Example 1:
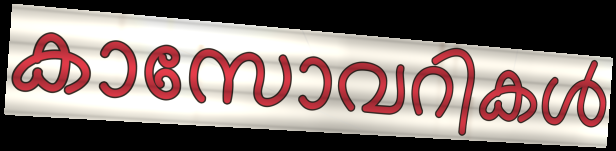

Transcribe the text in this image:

കാസോവറികൾ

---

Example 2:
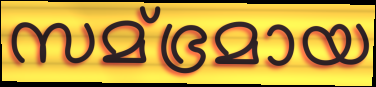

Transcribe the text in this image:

സമ്ഭ്രമായ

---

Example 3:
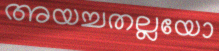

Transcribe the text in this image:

അയച്ചതല്ലയോ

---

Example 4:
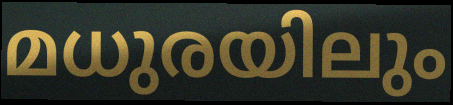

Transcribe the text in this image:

മധുരയിലും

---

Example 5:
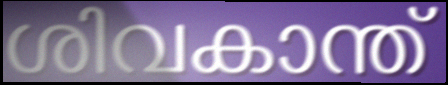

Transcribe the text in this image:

ശിവകാന്ത്